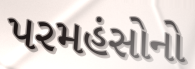
પરમહંસોનો